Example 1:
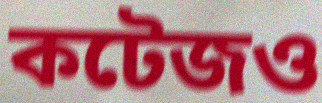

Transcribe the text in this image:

কটেজও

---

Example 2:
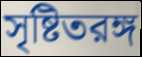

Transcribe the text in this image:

সৃষ্টিতরঙ্গ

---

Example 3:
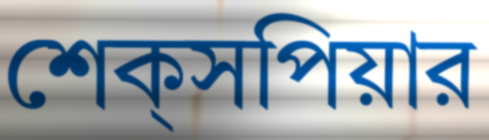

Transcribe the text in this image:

শেক্‌সপিয়ার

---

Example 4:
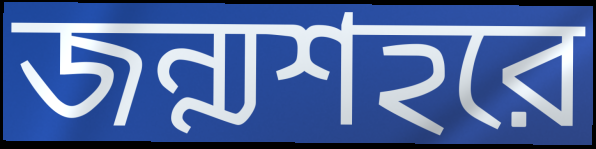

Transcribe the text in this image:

জন্মশহরে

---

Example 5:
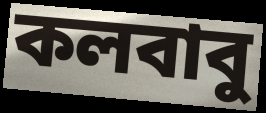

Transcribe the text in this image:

কলবাবু